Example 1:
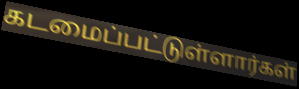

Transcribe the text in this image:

கடமைப்பட்டுள்ளார்கள்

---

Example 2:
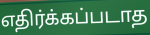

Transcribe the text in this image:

எதிர்க்கப்படாத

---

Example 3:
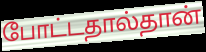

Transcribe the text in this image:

போட்டதால்தான்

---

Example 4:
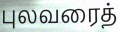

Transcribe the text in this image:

புலவரைத்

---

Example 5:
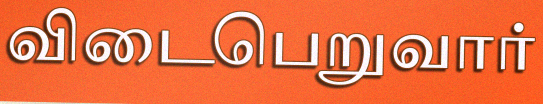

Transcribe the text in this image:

விடைபெறுவார்